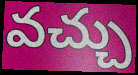
వచ్చు